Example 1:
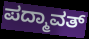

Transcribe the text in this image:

ಪದ್ಮಾವತ್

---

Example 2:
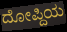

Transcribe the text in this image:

ದೋಪ್ದಿಯ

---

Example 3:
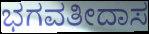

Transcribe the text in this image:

ಭಗವತೀದಾಸ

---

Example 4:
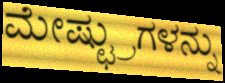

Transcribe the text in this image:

ಮೇಷ್ಟ್ರುಗಳನ್ನು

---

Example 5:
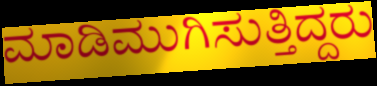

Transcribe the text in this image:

ಮಾಡಿಮುಗಿಸುತ್ತಿದ್ದರು